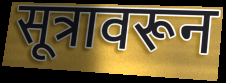
सूत्रावरून